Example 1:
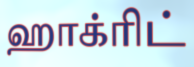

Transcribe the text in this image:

ஹாக்ரிட்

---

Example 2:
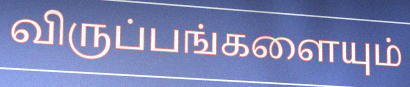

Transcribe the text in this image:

விருப்பங்களையும்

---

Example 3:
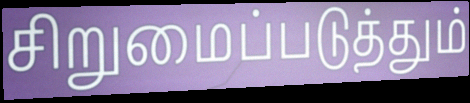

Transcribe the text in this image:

சிறுமைப்படுத்தும்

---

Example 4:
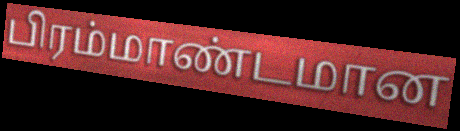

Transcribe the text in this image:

பிரம்மாண்டமான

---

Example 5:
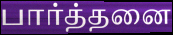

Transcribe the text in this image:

பார்த்தனை